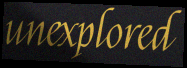
unexplored